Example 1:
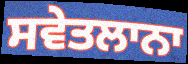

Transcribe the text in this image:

ਸਵੇਤਲਾਨਾ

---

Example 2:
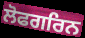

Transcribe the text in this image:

ਲੋਫਗਰਿਨ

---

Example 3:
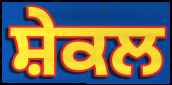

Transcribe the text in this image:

ਸ਼ੇਕਲ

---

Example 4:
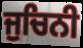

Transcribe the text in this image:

ਜੁਚਿਨੀ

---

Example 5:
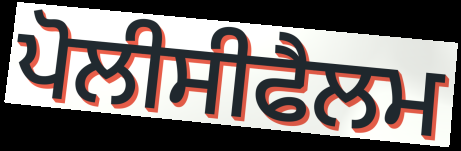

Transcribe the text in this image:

ਪੋਲੀਸੀਫੈਲਮ